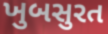
ખુબસુરત